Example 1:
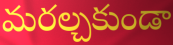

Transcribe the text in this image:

మరల్చకుండా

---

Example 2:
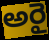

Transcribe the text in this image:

అరై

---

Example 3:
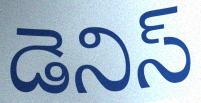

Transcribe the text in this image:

డెనిస్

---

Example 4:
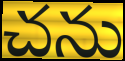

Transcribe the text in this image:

చను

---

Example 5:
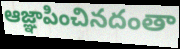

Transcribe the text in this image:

ఆజ్ఞాపించినదంతా